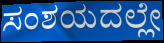
ಸಂಶಯದಲ್ಲೇ